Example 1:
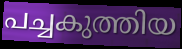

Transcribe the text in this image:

പച്ചകുത്തിയ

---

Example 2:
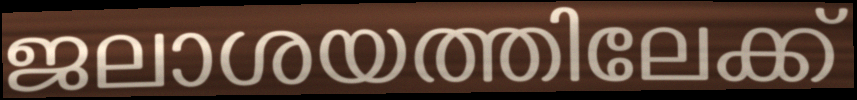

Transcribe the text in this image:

ജലാശയത്തിലേക്ക്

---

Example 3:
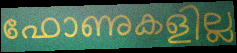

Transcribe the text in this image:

ഫോണുകളില്ല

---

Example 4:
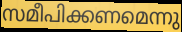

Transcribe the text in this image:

സമീപിക്കണമെന്നു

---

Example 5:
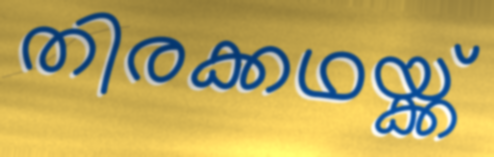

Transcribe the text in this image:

തിരക്കഥയ്ക്ക്